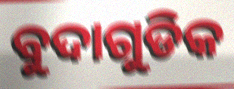
ବୁଦାଗୁଡିକ